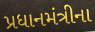
પ્રધાનમંત્રીના